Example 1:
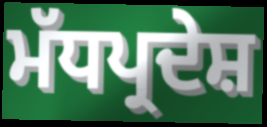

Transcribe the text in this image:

ਮੱਧਪ੍ਰਦੇਸ਼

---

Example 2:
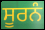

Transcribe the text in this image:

ਸੂਰਨੰ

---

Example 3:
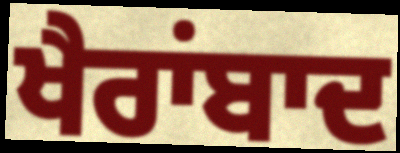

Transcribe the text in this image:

ਖੈਰਾਂਬਾਦ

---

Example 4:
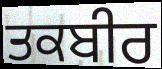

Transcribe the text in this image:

ਤਕਬੀਰ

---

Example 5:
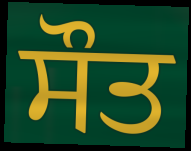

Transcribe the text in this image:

ਸੌਤ